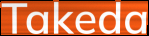
Takeda